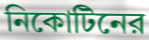
নিকোটিনের